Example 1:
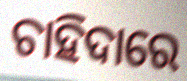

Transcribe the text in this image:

ଚାହିଦାରେ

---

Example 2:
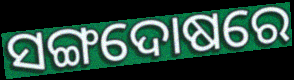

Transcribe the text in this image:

ସଙ୍ଗଦୋଷରେ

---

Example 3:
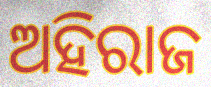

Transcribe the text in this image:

ଅହିରାଜ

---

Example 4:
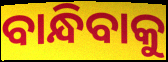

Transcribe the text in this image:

ବାନ୍ଧିବାକୁ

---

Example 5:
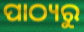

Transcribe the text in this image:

ପାଠ୍ୟରୁ